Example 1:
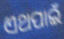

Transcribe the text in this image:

ଏଥପାଇଁ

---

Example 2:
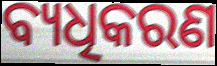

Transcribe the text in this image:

ବ୍ୟଧିକରଣ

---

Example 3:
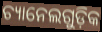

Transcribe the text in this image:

ଚ୍ୟାନେଲଗୁଡ଼ିକ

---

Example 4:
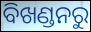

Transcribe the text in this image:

ବିଖଣ୍ଡନରୁ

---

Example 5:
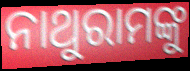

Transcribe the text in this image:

ନାଥୁରାମଙ୍କୁ